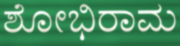
ಶೋಭಿರಾಮ